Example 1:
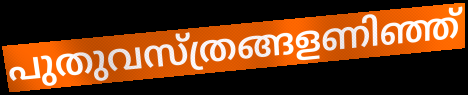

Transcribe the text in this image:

പുതുവസ്ത്രങ്ങളണിഞ്ഞ്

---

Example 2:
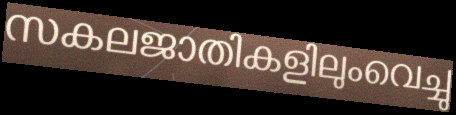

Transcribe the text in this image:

സകലജാതികളിലുംവെച്ചു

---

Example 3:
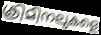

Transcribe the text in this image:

ക്രിമിനലുകളെ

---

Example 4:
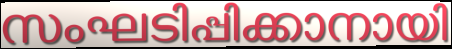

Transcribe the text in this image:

സംഘടിപ്പിക്കാനായി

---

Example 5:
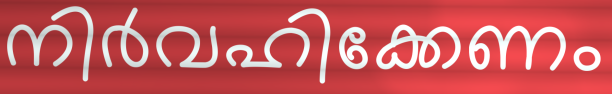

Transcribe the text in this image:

നിർവഹിക്കേണം